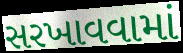
સરખાવવામાં